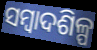
ସମ୍ୱାଦଶିଳ୍ପ